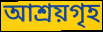
আশ্ৰয়গৃহ